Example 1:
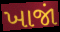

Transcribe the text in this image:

ખાજાં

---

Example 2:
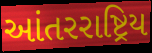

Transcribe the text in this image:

આંતરરાષ્ટ્રિય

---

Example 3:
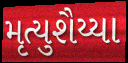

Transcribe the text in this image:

મૃત્યુશૈય્યા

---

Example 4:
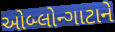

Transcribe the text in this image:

ઓબ્લોન્ગાટાને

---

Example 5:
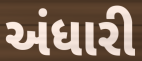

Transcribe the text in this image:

અંધારી